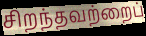
சிறந்தவற்றைப்